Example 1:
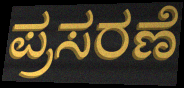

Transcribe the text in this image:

ಪ್ರಸರಣೆ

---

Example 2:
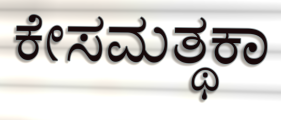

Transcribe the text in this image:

ಕೇಸಮತ್ಥಕಾ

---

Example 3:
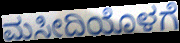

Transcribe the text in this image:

ಮಸೀದಿಯೊಳಗೆ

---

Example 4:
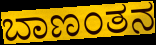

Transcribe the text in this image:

ಬಾಣಂತನ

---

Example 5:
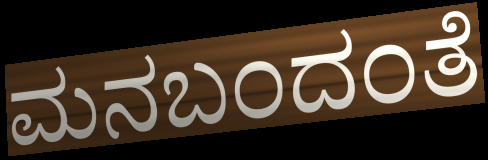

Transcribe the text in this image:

ಮನಬಂದಂತೆ